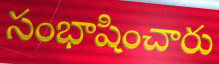
సంభాషించారు